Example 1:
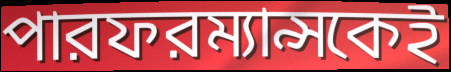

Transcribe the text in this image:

পারফরম্যান্সকেই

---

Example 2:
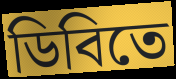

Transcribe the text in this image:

ডিবিতে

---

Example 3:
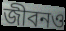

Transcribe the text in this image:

জীবনও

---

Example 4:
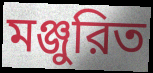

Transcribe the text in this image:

মঞ্জুরিত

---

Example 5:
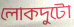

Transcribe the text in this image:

লোকদুটো